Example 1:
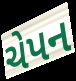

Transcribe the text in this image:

ચેપન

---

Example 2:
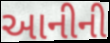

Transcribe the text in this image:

આનીની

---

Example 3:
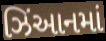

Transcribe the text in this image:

ઝિંઆનમાં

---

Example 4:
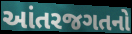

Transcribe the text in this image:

આંતરજગતનો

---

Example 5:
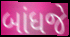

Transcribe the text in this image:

બાંધજે